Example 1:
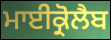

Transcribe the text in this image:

ਮਾਈਕ੍ਰੋਲੈਬ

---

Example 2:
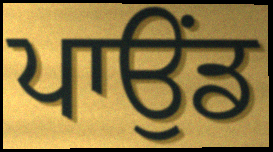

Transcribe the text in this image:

ਪਾਉਂਡ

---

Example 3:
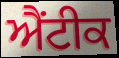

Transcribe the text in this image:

ਐਂਟੀਕ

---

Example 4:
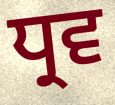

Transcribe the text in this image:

ਧ੍ਰਵ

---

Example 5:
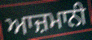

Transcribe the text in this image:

ਆਜ਼ਮਾਨੀ